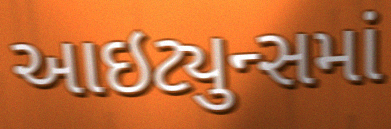
આઇટ્યુન્સમાં